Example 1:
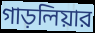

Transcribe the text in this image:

গাড়লিয়ার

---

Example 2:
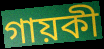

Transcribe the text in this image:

গায়কী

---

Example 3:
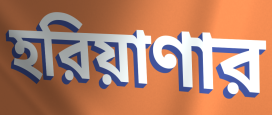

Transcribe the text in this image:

হরিয়াণার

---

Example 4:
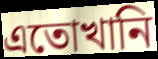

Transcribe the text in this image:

এতোখানি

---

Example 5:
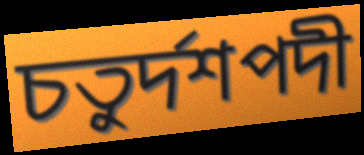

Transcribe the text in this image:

চতুর্দশপদী